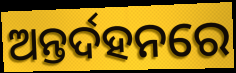
ଅନ୍ତର୍ଦହନରେ